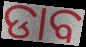
ଡାବ